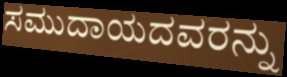
ಸಮುದಾಯದವರನ್ನು